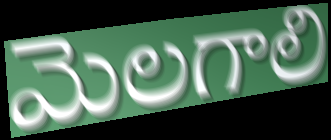
మెలగాలి